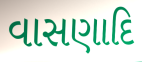
વાસણાદિ